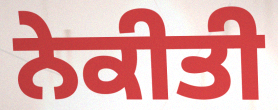
ਨੇਕੀਤੀ